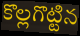
కొల్లగొట్టిన